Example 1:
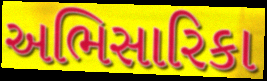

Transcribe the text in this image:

અભિસારિકા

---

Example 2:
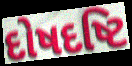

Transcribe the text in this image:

દોષદષ્ટિ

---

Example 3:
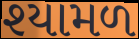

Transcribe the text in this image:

શ્યામળ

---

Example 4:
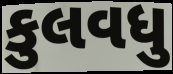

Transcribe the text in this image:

કુલવધુ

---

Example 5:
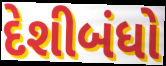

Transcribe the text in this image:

દેશીબંધો